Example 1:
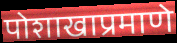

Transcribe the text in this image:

पोशाखाप्रमाणे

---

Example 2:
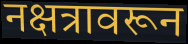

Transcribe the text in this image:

नक्षत्रावरून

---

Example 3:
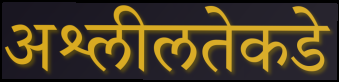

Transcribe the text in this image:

अश्लीलतेकडे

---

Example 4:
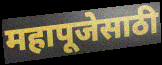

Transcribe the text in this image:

महापूजेसाठी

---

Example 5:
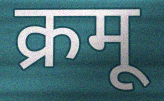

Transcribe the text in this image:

क्रमू